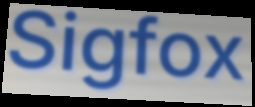
Sigfox